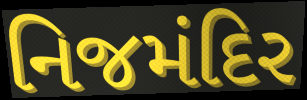
નિજમંદિર